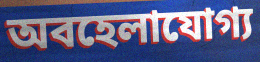
অবহেলাযোগ্য